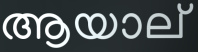
ആയാല്